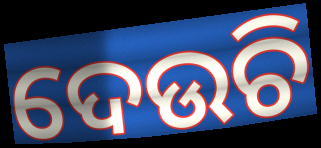
ଦେଉଚି